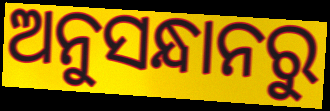
ଅନୁସନ୍ଧାନରୁ